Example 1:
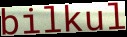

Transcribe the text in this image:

bilkul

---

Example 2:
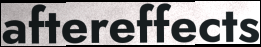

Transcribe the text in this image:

aftereffects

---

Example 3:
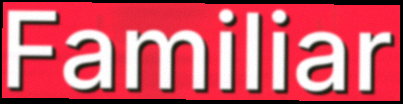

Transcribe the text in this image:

Familiar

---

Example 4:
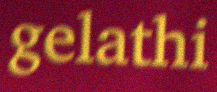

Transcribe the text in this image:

gelathi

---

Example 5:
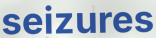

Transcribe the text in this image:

seizures